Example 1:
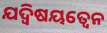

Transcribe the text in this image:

ଯଦ୍ଵିଷୟତ୍ଵେନ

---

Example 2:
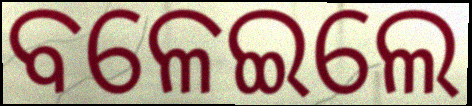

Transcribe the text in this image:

ବଳେଇଲେ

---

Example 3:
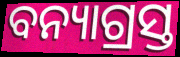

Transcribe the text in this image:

ବନ୍ୟାଗ୍ରସ୍ତ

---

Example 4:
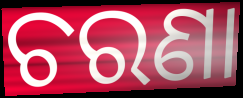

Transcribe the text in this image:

ଚରଣା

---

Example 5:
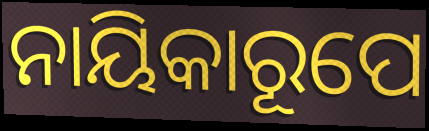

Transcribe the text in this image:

ନାୟିକାରୂପେ